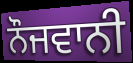
ਨੌਜਵਾਨੀ